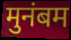
मुनंबम